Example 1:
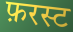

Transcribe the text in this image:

फ़रस्ट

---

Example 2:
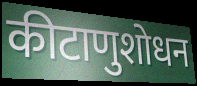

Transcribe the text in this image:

कीटाणुशोधन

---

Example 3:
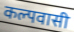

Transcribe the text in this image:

कल्पवासी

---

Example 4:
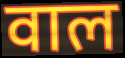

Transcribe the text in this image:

वाल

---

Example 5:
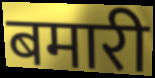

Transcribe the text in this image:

बमारी